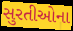
સુરતીઓના